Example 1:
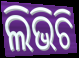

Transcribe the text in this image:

ଲିଭିଚି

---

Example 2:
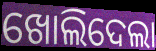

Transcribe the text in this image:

ଖୋଲିଦେଲା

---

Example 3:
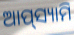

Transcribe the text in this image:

ଆପ୍‌ସ୍ୟାମି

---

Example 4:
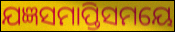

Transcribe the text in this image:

ଯଜ୍ଞସମାପ୍ତିସମୟେ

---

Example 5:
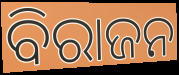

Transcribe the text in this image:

ବିରାଜନ